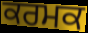
ਕਰਮਕ